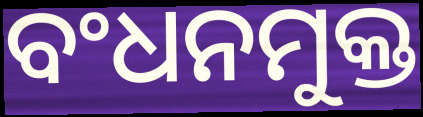
ବଂଧନମୁକ୍ତ